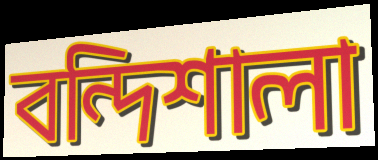
বন্দিশালা